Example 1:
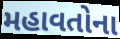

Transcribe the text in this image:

મહાવતોના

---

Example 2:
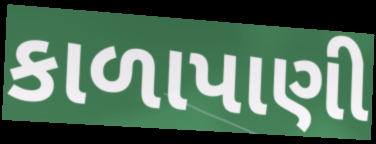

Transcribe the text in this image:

કાળાપાણી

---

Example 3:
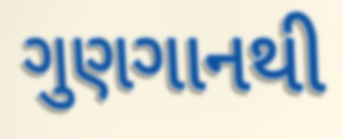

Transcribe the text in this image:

ગુણગાનથી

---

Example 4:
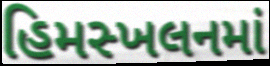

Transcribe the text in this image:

હિમસ્ખલનમાં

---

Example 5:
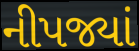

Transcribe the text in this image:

નીપજ્યાં